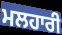
ਮਲਹਾਰੀ